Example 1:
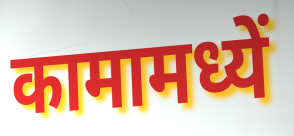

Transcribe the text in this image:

कामामध्यें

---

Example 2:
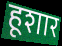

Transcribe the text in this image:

हूशार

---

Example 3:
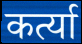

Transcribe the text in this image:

कर्त्या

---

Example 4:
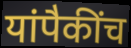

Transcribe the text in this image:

यांपैकींच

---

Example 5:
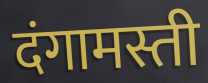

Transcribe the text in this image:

दंगामस्ती